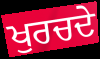
ਖੁਰਚਦੇ